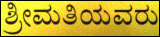
ಶ್ರೀಮತಿಯವರು